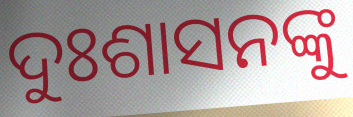
ଦୁଃଶାସନଙ୍କୁ